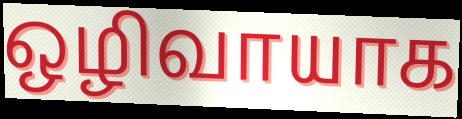
ஒழிவாயாக